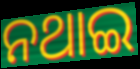
ନଥାଇ